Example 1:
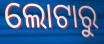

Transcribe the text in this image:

ଲୋଟାରୁ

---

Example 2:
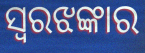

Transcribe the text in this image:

ସ୍ୱରଝଙ୍କାର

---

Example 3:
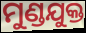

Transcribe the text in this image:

ମୁଣ୍ଡଯୁକ୍ତ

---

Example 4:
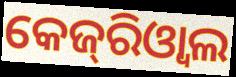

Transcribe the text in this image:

କେଜ୍‌ରିଓ୍ବାଲ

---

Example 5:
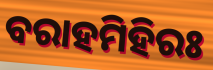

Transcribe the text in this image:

ବରାହମିହିରଃ